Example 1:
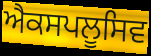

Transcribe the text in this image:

ਐਕਸਪਲੂਸਿਵ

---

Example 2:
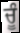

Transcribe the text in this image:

ਚੂੰ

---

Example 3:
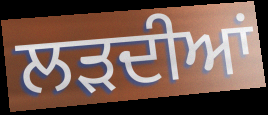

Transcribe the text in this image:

ਲੜਦੀਆਂ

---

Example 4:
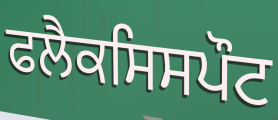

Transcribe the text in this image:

ਫਲੈਕਸਿਸਪੌਟ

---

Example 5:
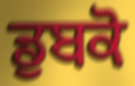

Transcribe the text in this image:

ਡੁਬਕੋ